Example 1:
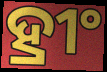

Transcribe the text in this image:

ହ୍ରୀଂ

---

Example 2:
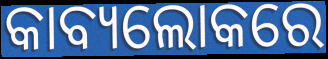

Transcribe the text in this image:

କାବ୍ୟଲୋକରେ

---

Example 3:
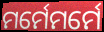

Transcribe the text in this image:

ମର୍ମେମର୍ମେ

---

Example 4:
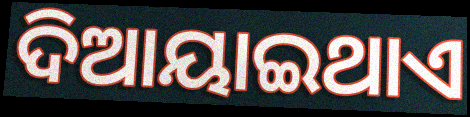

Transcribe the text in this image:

ଦିଆୟାଇଥାଏ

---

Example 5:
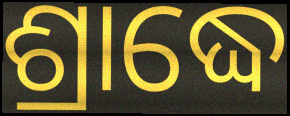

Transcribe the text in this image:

ଶ୍ରାଦ୍ଧେ